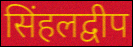
सिंहलद्वीप